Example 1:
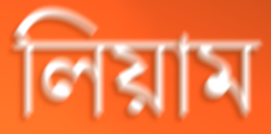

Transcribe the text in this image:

লিয়াম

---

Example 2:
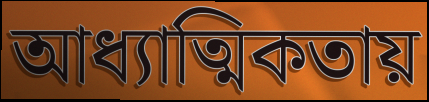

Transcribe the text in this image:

আধ্যাত্মিকতায়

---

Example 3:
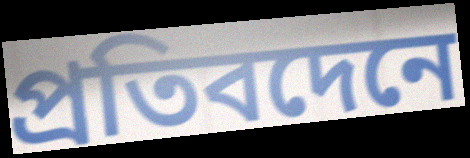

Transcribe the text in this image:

প্রতিবদেনে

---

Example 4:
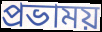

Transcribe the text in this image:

প্রভাময়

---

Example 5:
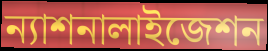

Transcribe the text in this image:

ন্যাশনালাইজেশন